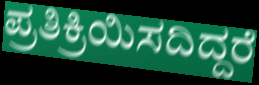
ಪ್ರತಿಕ್ರಿಯಿಸದಿದ್ದರೆ